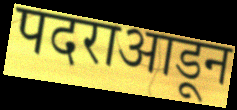
पदराआडून